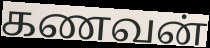
கணவன்